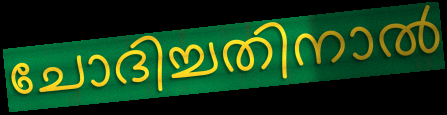
ചോദിച്ചതിനാൽ